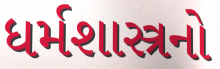
ધર્મશાસ્ત્રનો